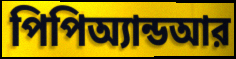
পিপিঅ্যান্ডআর